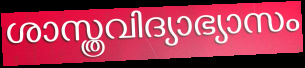
ശാസ്ത്രവിദ്യാഭ്യാസം